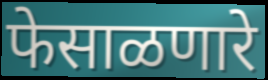
फेसाळणारे